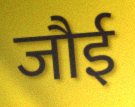
जौई